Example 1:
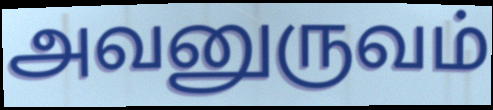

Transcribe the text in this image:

அவனுருவம்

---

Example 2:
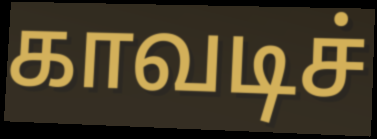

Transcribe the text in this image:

காவடிச்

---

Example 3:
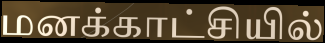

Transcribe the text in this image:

மனக்காட்சியில்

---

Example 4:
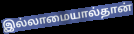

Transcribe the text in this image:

இல்லாமையால்தான்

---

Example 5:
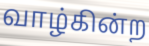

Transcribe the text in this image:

வாழ்கின்ற